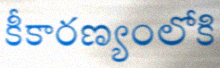
కీకారణ్యంలోకి